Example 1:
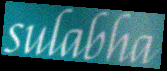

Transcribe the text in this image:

sulabha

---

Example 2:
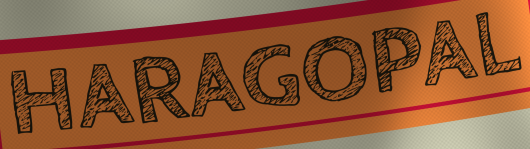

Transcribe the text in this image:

HARAGOPAL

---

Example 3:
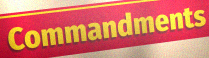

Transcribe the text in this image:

Commandments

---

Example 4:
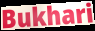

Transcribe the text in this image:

Bukhari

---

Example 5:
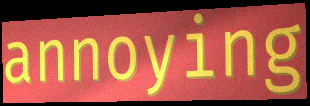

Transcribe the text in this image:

annoying